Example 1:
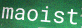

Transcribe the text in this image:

maoist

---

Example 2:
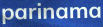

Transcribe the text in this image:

parinama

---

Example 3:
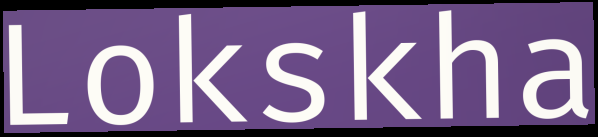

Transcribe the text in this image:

Lokskha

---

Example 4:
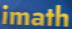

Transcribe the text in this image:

imath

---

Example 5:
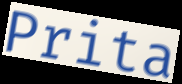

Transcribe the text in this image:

Prita